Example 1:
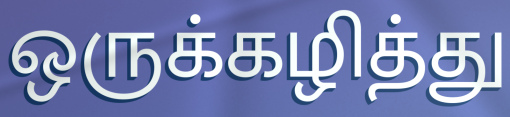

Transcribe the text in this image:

ஒருக்கழித்து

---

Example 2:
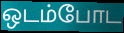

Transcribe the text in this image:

ஒடம்போட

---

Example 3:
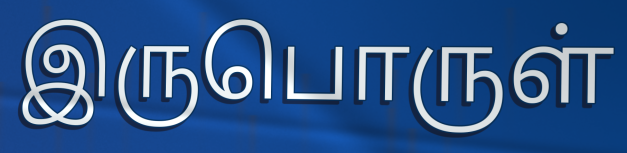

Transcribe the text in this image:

இருபொருள்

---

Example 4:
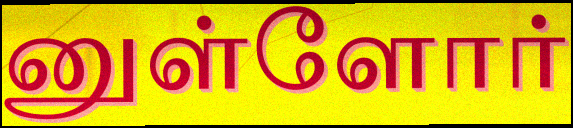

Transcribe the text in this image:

னுள்ளோர்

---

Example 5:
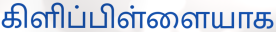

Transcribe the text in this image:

கிளிப்பிள்ளையாக